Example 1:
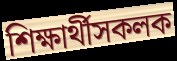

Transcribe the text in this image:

শিক্ষাৰ্থীসকলক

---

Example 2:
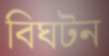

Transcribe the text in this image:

বিঘটন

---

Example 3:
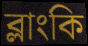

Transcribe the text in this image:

ব্লাংকি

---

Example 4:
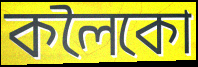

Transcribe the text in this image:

কলৈকো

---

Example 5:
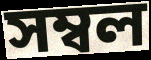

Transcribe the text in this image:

সম্বল